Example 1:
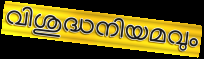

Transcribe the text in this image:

വിശുദ്ധനിയമവും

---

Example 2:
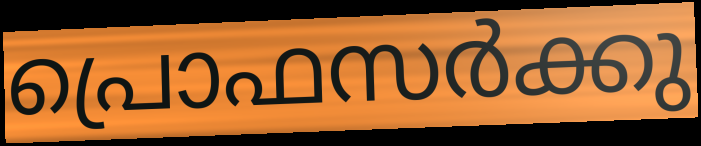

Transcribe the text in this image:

പ്രൊഫസർക്കു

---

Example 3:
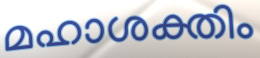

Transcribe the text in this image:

മഹാശക്തിം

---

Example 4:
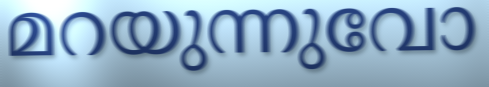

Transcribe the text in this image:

മറയുന്നുവോ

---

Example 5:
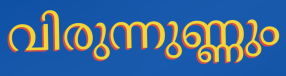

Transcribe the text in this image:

വിരുന്നുണ്ണും